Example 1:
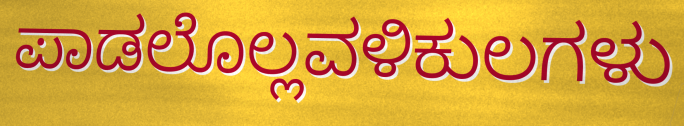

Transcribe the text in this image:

ಪಾಡಲೊಲ್ಲವಳಿಕುಲಗಳು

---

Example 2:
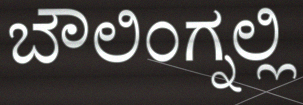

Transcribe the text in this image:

ಬೌಲಿಂಗ್ನಲ್ಲಿ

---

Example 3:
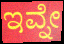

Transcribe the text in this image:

ಇವ್ನೇ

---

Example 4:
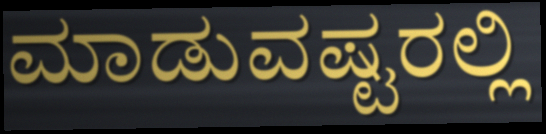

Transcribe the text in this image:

ಮಾಡುವಷ್ಟರಲ್ಲಿ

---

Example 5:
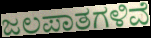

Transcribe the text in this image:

ಜಲಪಾತಗಳಿವೆ